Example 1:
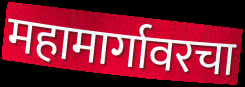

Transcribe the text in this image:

महामार्गावरचा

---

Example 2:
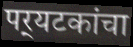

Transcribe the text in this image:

पर्यटकांचा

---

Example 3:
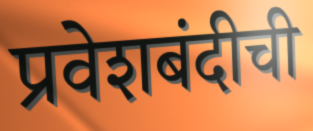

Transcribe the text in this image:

प्रवेशबंदीची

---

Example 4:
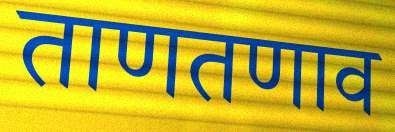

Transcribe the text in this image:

ताणतणाव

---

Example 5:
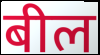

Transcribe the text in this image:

बील